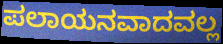
ಪಲಾಯನವಾದವಲ್ಲ